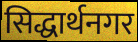
सिद्धार्थनगर